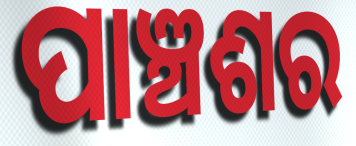
ପାଞ୍ଚଶର